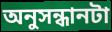
অনুসন্ধানটা